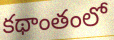
కథాంతంలో